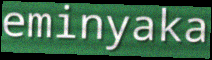
eminyaka